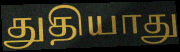
துதியாது